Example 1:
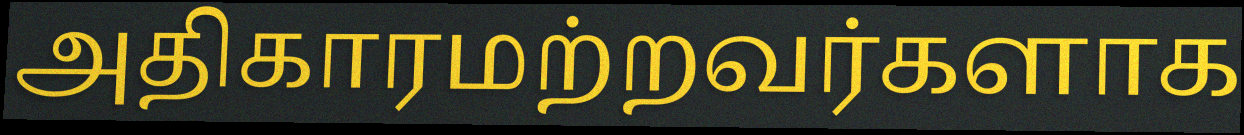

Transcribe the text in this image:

அதிகாரமற்றவர்களாக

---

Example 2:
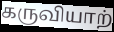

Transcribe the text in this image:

கருவியாற்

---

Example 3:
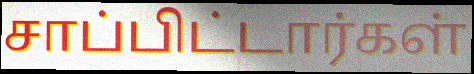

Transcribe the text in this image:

சாப்பிட்டார்கள்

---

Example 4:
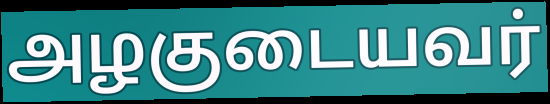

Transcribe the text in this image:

அழகுடையவர்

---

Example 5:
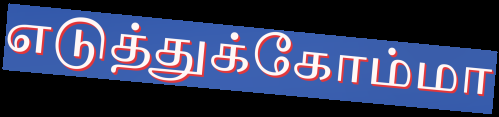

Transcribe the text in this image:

எடுத்துக்கோம்மா